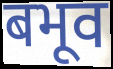
बभूव